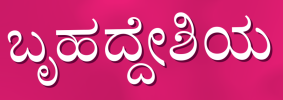
ಬೃಹದ್ದೇಶಿಯ